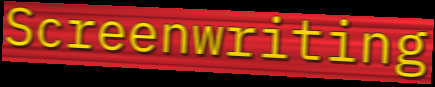
Screenwriting